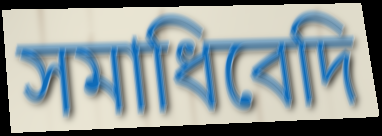
সমাধিবেদি